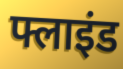
फ्लाइंड